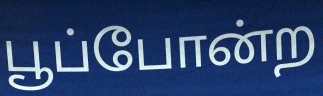
பூப்போன்ற